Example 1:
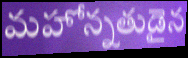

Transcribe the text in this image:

మహోన్నతుడైన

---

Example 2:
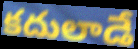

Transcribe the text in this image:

కదులాడే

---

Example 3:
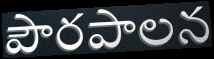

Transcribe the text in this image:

పౌరపాలన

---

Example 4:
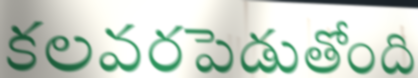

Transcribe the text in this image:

కలవరపెడుతోంది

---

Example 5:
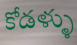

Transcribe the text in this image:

కోడళ్ళు